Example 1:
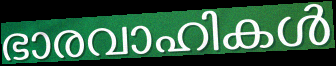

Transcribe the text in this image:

ഭാരവാഹികൾ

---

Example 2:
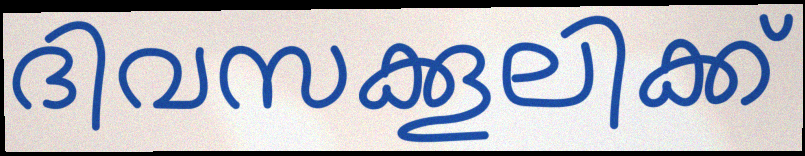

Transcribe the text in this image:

ദിവസക്കൂലിക്ക്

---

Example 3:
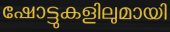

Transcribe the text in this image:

ഷോട്ടുകളിലുമായി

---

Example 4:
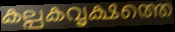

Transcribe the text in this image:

കല്പകവൃക്ഷത്തെ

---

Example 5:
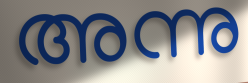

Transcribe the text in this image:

അന്നു